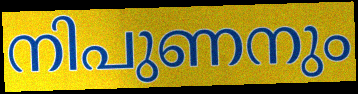
നിപുണനും